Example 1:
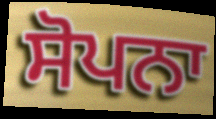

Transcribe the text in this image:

ਸੋਪਨਾ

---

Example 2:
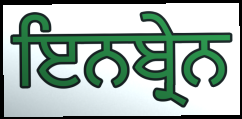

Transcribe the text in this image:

ਇਨਬ੍ਰੇਨ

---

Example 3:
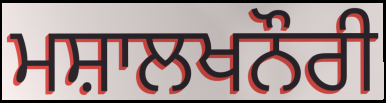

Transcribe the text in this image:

ਮਸ਼ਾਲਖਨੌਰੀ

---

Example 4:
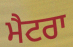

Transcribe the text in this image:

ਮੈਟਰਾ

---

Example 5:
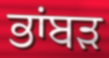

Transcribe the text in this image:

ਭਾਂਬੜ